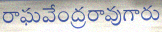
రాఘవేంద్రరావుగారు